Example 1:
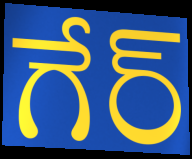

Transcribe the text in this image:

గేర్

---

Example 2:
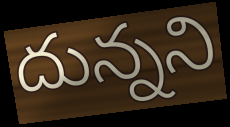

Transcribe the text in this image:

దున్నని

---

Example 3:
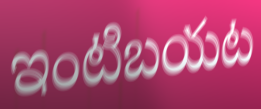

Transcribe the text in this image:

ఇంటిబయట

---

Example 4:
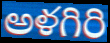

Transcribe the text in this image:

అళగిరి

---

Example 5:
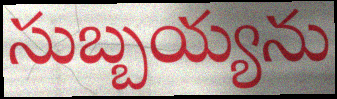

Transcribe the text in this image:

సుబ్బయ్యను